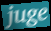
juge